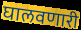
घालवणारी